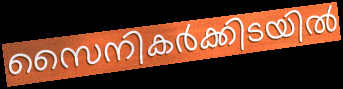
സൈനികർക്കിടയിൽ